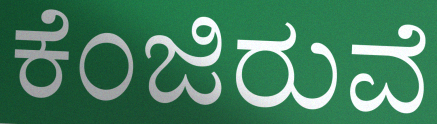
ಕೆಂಜಿರುವೆ